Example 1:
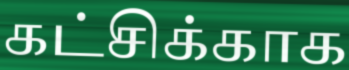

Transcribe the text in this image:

கட்சிக்காக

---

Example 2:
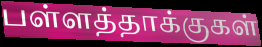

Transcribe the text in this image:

பள்ளத்தாக்குகள்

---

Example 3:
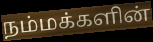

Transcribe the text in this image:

நம்மக்களின்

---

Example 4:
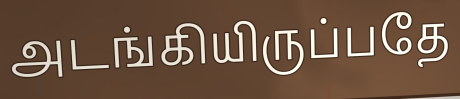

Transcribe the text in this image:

அடங்கியிருப்பதே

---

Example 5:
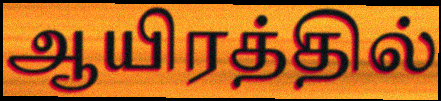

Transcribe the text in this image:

ஆயிரத்தில்